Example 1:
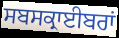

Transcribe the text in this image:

ਸਬਸਕ੍ਰਾਈਬਰਾਂ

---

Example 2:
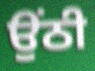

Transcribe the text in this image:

ਉਂਠੀ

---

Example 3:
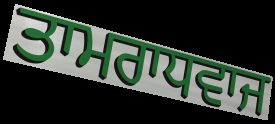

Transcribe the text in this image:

ਤਾਮਰਾਧਵਾਜ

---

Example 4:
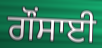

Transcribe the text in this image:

ਗੌਂਸਾਈ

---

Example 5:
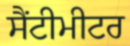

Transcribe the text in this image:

ਸੈਂਟੀਮੀਟਰ